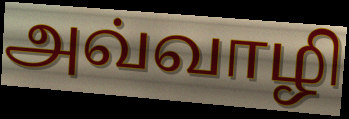
அவ்வாழி